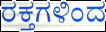
ರಕ್ತಗಳಿಂದ